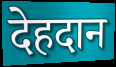
देहदान